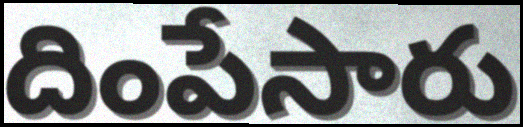
దింపేసారు